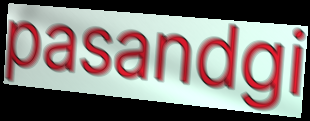
pasandgi